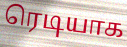
ரெடியாக